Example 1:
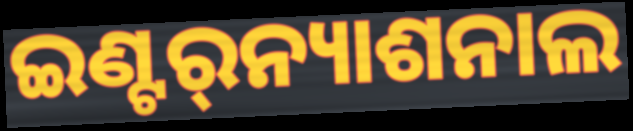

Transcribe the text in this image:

ଇଣ୍ଟର୍‌ନ୍ୟାଶନାଲ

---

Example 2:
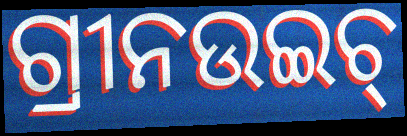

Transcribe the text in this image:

ଗ୍ରୀନଉଇଚ୍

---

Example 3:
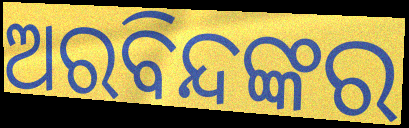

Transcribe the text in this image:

ଅରବିନ୍ଦଙ୍କର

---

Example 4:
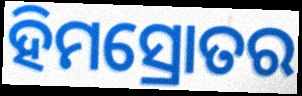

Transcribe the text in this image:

ହିମସ୍ରୋତର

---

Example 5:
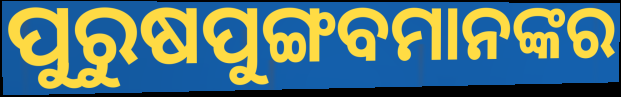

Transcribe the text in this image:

ପୁରୁଷପୁଙ୍ଗବମାନଙ୍କର